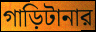
গাড়িটানার